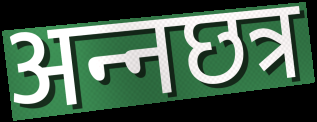
अन्नछत्र